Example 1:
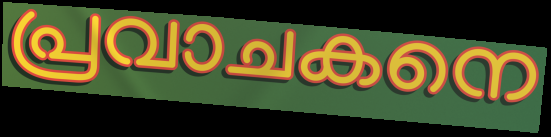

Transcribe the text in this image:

പ്രവാചകനെ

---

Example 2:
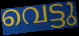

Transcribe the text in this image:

വെട്ടു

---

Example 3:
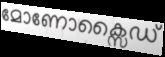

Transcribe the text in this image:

മോണോക്സൈഡ്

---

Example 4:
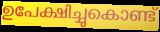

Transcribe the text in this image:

ഉപേക്ഷിച്ചുകൊണ്ട്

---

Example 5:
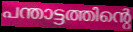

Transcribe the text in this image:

പന്താട്ടത്തിന്റെ